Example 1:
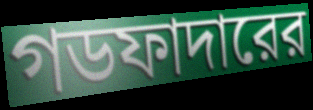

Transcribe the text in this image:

গডফাদারের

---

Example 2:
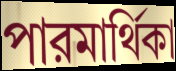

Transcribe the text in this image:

পারমার্থিকা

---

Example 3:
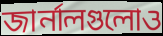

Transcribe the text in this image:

জার্নালগুলোও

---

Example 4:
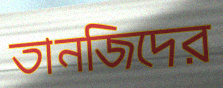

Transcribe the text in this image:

তানজিদের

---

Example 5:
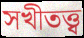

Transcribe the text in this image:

সখীতত্ত্ব